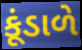
કૂંડાળે